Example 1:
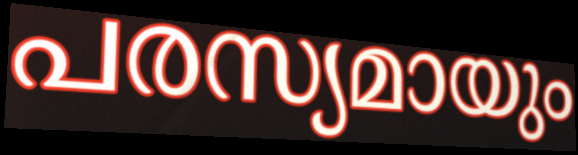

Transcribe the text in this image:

പരസ്യമായും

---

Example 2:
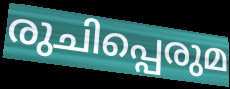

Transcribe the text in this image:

രുചിപ്പെരുമ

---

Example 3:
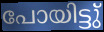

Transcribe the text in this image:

പോയിട്ടു്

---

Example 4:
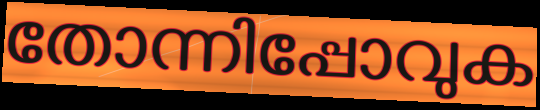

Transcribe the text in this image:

തോന്നിപ്പോവുക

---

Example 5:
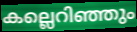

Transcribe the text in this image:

കല്ലെറിഞ്ഞും